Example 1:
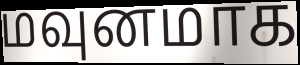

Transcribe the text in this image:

மவுனமாக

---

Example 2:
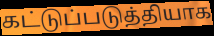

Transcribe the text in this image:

கட்டுப்படுத்தியாக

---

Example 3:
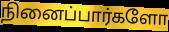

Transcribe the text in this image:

நினைப்பார்களோ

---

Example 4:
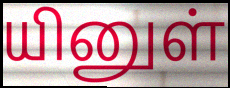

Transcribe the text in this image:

யினுள்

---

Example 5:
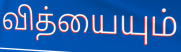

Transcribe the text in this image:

வித்யையும்